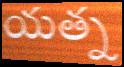
యత్న